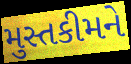
મુસ્તકીમને